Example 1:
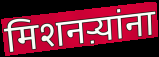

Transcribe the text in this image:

मिशनऱ्‍यांना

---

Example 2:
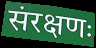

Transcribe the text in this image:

संरक्षणः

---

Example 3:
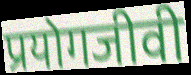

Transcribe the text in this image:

प्रयोगजीवी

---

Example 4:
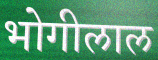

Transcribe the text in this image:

भोगीलाल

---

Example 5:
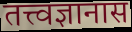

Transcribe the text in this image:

तत्त्वज्ञानास